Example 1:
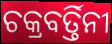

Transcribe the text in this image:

ଚକ୍ରବର୍ତ୍ତିନୀ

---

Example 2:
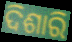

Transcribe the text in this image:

ଦିଶାରି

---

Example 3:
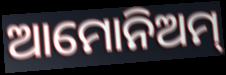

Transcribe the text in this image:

ଆମୋନିଅମ୍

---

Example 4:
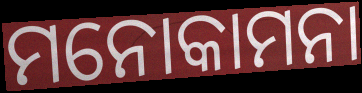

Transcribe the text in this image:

ମନୋକାମନା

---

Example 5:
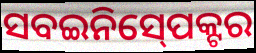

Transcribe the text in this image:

ସବଇନିସ୍‍ପେକ୍ଟର